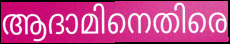
ആദാമിനെതിരെ